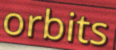
orbits